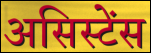
असिस्टेंस